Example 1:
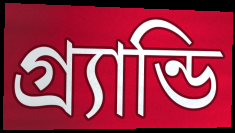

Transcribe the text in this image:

গ্র্যান্ডি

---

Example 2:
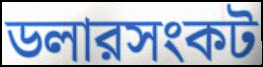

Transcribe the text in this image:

ডলারসংকট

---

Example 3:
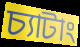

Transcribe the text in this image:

চ্যাটাং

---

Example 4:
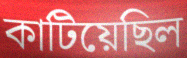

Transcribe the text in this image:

কাটিয়েছিল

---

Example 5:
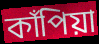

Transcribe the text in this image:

কাঁপিয়া